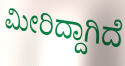
ಮೀರಿದ್ದಾಗಿದೆ